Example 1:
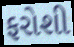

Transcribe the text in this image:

ફરોશી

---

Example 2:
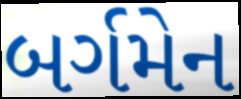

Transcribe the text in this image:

બર્ગમેન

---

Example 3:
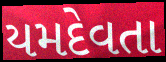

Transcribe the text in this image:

યમદેવતા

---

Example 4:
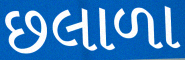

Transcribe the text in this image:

છલાળા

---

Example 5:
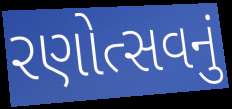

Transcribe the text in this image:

રણોત્સવનું